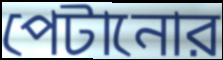
পেটানোর